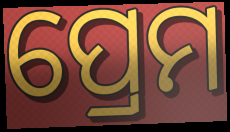
ପ୍ରେମ